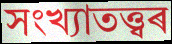
সংখ্যাতত্ত্বৰ